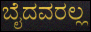
ಬೈದವರಲ್ಲ